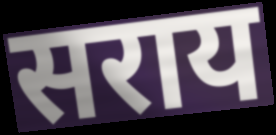
सराय